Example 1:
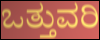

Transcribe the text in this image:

ಒತ್ತುವರಿ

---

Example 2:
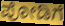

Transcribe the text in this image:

ಪೋಡಿಗೆ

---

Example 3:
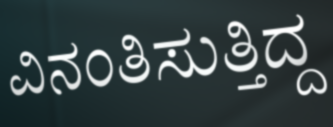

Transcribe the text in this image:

ವಿನಂತಿಸುತ್ತಿದ್ದ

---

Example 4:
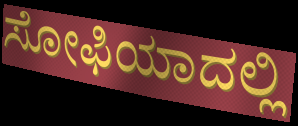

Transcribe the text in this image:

ಸೋಫಿಯಾದಲ್ಲಿ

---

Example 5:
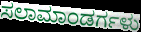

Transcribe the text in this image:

ಸಲಾಮಾಂಡರ್ಗಳು